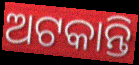
ଅଟକାନ୍ତି